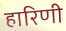
हारिणी